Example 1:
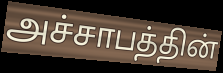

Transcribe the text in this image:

அச்சாபத்தின்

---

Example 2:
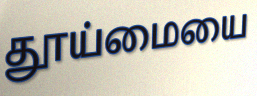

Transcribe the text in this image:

தூய்மையை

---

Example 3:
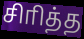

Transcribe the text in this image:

சிரித்த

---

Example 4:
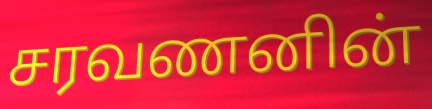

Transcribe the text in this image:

சரவணனின்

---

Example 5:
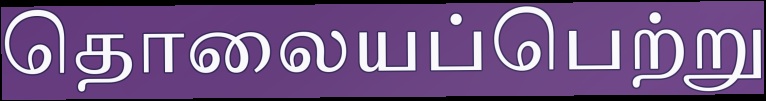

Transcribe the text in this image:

தொலையப்பெற்று